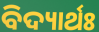
ବିଦ୍ୟାର୍ଥଃ